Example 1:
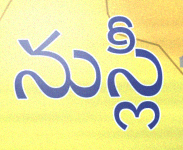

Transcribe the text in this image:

నుస్లీ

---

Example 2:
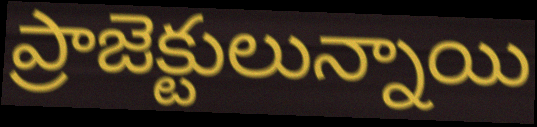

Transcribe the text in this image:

ప్రాజెక్టులున్నాయి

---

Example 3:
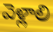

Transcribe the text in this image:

వెళ్లాలి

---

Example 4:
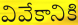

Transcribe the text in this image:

వివేకానికి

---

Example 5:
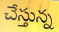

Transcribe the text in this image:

చేస్తున్న